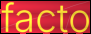
facto